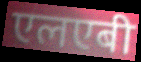
एलएबी